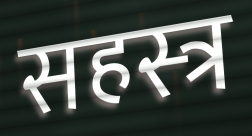
सहस्‍त्र